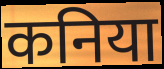
कनिया